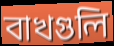
বাখগুলি